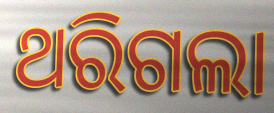
ଥରିଗଲା